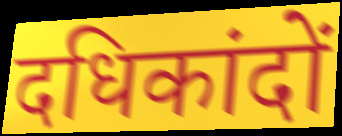
दधिकांदों